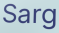
Sarg